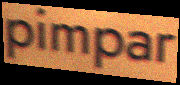
pimpar